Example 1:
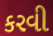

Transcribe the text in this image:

કરવી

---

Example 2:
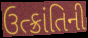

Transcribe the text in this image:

ઉત્ક્રાંતિની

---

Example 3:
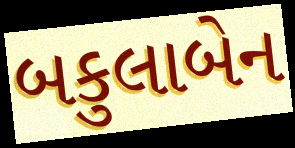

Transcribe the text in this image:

બકુલાબેન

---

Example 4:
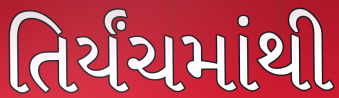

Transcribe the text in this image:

તિર્યંચમાંથી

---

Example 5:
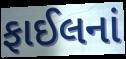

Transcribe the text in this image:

ફાઈલનાં